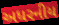
અધરનીય